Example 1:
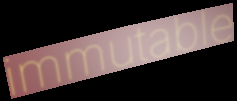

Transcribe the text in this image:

immutable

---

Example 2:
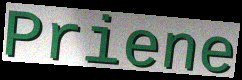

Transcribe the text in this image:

Priene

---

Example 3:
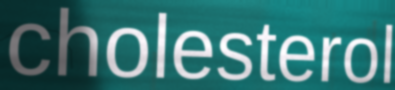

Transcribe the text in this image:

cholesterol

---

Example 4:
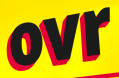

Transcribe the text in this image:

ovr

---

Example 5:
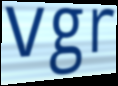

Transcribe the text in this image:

vgr